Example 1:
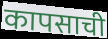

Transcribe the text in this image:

कापसाची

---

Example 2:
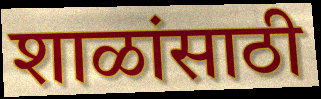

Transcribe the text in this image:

शाळांसाठी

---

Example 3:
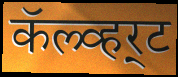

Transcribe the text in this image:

कॅल्व्हर्ट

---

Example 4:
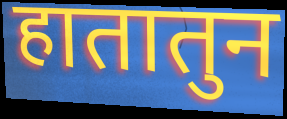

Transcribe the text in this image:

हातातुन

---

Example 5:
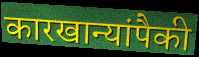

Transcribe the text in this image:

कारखान्यांपैकी